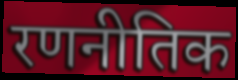
रणनीतिक